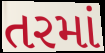
તરમાં